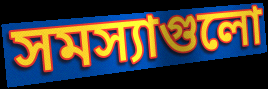
সমস্যাগুলো